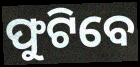
ଫୁଟିବେ